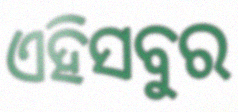
ଏହିସବୁର